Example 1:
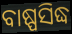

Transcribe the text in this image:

ବାଷ୍ପସିଦ୍ଧ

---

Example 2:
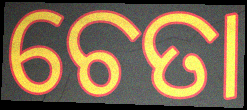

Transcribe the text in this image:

ଚେତା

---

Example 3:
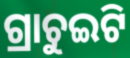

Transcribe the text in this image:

ଗ୍ରାଚୁଇଟି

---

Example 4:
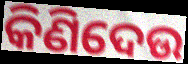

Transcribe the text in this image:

କିଣିଦେଉ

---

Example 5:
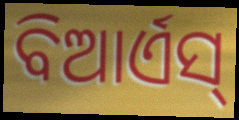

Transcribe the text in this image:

ବିଆର୍ଏସ୍